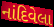
નાંદિવેલા